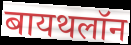
बायथलॉन